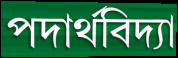
পদাৰ্থবিদ্যা